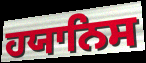
ਹਯਾਨਿਸ